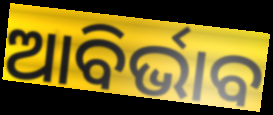
ଆବିର୍ଭାବ